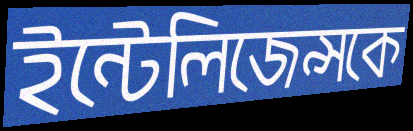
ইন্টেলিজেন্সকে